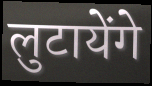
लुटायेंगे